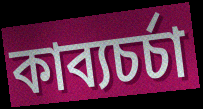
কাব্যচর্চা